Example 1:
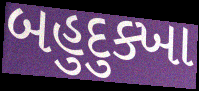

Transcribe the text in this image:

બહુદુક્ખા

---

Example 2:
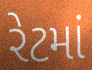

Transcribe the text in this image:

રેટમાં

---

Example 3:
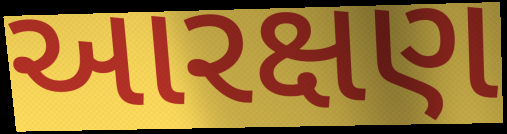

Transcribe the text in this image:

આરક્ષણ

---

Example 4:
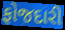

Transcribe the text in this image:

ફોજદારી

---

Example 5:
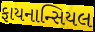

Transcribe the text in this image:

ફાયનાન્સિયલ